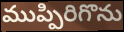
ముప్పిరిగొను